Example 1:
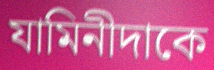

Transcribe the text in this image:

যামিনীদাকে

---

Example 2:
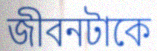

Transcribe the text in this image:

জীবনটাকে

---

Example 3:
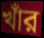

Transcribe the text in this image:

খাঁর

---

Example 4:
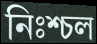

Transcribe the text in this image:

নিঃশ্চল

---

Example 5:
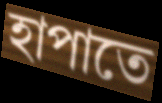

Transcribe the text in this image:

হাপাতে